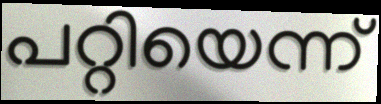
പറ്റിയെന്ന്